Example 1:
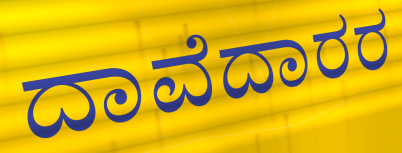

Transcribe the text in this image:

ದಾವೆದಾರರ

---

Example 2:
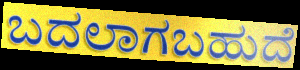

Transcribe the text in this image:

ಬದಲಾಗಬಹುದೆ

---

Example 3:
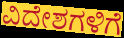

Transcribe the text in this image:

ವಿದೇಶಗಳಿಗೆ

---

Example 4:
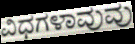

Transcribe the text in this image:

ವಿಧಗಳಾವುವು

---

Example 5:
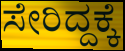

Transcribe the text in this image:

ಸೇರಿದ್ದಕ್ಕೆ